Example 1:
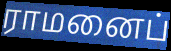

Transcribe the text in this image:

ராமனைப்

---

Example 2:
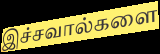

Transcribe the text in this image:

இச்சவால்களை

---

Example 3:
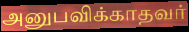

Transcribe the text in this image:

அனுபவிக்காதவர்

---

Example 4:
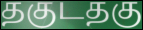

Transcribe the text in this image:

தகுடதகு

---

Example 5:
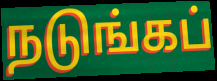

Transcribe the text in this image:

நடுங்கப்